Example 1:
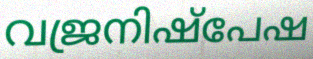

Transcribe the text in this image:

വജ്രനിഷ്പേഷ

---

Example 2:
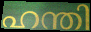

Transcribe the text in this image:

ഹന്തി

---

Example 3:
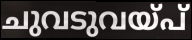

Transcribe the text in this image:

ചുവടുവയ്പ്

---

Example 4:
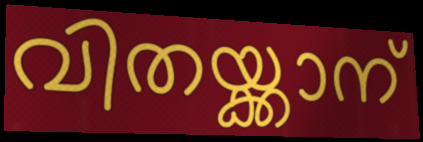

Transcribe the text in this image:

വിതയ്ക്കാന്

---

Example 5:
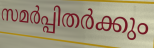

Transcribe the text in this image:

സമർപ്പിതർക്കും